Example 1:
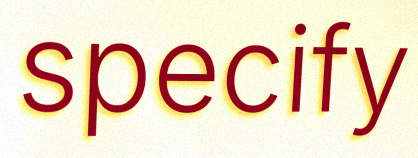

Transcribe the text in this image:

specify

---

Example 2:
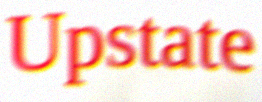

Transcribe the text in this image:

Upstate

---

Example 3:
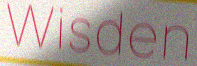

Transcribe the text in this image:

Wisden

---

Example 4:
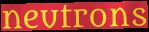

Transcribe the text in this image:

neutrons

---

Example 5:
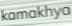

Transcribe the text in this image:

kamakhya